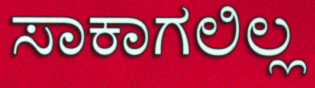
ಸಾಕಾಗಲಿಲ್ಲ